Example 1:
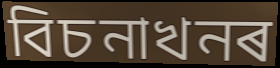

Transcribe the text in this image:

বিচনাখনৰ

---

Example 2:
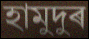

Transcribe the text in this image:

হামুদুৰ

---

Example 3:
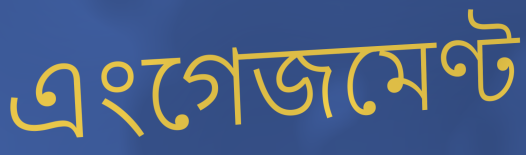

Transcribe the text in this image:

এংগেজমেণ্ট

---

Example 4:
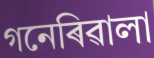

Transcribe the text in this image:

গনেৰিৱালা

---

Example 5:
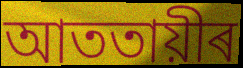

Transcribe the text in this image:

আততায়ীৰ